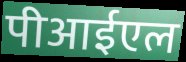
पीआईएल